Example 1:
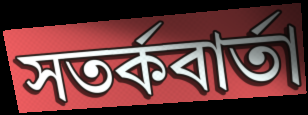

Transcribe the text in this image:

সতর্কবার্তা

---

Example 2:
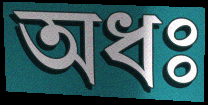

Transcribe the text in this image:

অধঃ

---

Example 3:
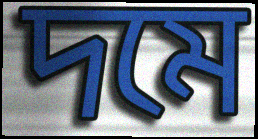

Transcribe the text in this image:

দমে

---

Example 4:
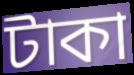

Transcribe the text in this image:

টাকা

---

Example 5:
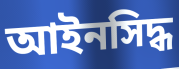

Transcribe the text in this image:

আইনসিদ্ধ